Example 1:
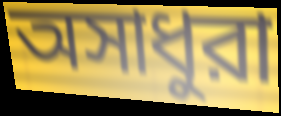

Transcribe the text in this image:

অসাধুরা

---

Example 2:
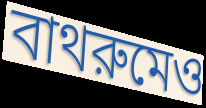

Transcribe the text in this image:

বাথরুমেও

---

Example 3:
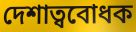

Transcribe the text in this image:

দেশাত্ববোধক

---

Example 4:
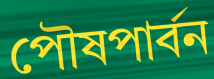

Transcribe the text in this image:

পৌষপার্বন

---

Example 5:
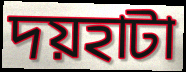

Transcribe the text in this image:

দয়হাটা